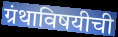
ग्रंथाविषयीची